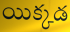
యిక్కడ